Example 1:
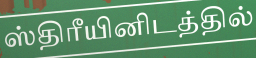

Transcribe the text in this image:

ஸ்திரீயினிடத்தில்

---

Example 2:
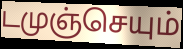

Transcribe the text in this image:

டமுஞ்செயும்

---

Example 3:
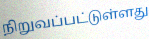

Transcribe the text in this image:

நிறுவப்பட்டுள்ளது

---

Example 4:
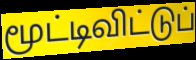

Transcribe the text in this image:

மூட்டிவிட்டுப்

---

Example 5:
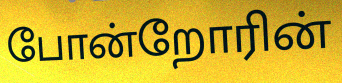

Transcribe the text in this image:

போன்றோரின்